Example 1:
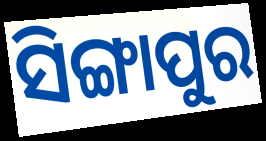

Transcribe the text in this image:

ସିଙ୍ଗାପୁର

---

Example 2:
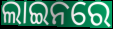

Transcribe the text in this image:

ଲାଇନରେ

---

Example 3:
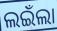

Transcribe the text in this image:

ଲଇଁଲା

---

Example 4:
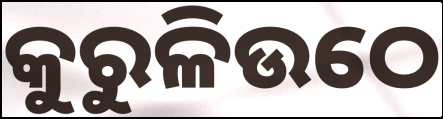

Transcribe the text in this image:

କୁରୁଳିଉଠେ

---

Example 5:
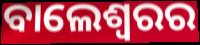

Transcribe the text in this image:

ବାଲେଶ୍ୱରର